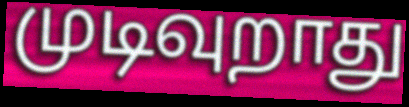
முடிவுறாது